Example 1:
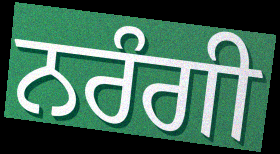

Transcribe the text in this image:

ਨਰੰਗੀ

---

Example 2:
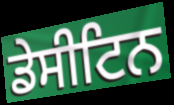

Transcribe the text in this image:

ਡੇਸੀਟਿਨ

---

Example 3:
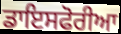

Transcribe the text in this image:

ਡਾਇਸਫੋਰੀਆ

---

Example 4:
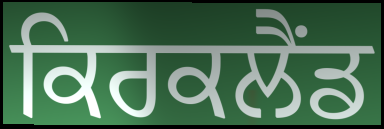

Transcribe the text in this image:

ਕਿਰਕਲੈਂਡ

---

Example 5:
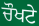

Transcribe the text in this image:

ਚੌਖਟੇ